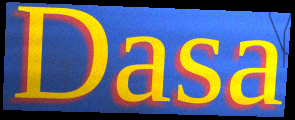
Dasa